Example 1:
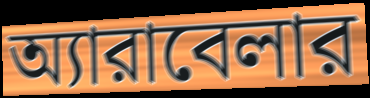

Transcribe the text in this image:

অ্যারাবেলার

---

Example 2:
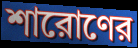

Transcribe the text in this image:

শারোণের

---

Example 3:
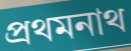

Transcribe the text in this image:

প্রথমনাথ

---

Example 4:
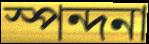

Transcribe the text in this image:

স্পন্দনা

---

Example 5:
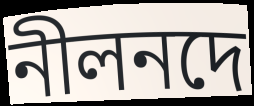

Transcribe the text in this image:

নীলনদে